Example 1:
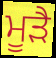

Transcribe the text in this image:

ਮੂੜੈ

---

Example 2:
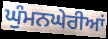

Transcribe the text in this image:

ਘੁੰਮਨਘੇਰੀਆਂ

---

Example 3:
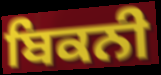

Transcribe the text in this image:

ਬਿਕਨੀ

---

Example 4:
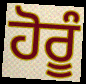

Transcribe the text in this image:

ਹੋਰੂੰ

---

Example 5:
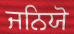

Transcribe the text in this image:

ਜਨਿਯੋ